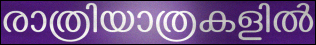
രാത്രിയാത്രകളിൽ